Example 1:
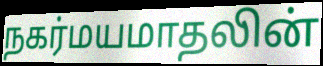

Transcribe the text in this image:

நகர்மயமாதலின்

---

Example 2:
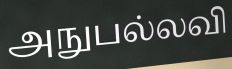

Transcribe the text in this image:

அநுபல்லவி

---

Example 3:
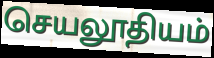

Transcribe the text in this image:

செயலூதியம்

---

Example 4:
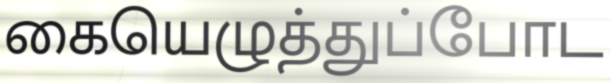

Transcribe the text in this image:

கையெழுத்துப்போட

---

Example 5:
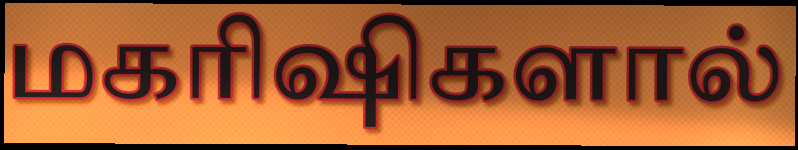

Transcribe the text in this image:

மகரிஷிகளால்